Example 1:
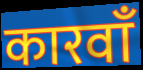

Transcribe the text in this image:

कारवाँ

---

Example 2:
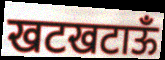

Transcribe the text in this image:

खटखटाऊँ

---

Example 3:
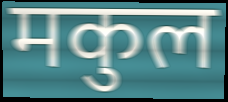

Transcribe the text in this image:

मकुल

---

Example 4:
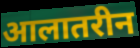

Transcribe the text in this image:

आलातरीन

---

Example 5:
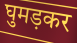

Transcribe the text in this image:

घुमड़कर